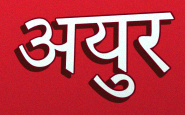
अयुर